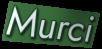
Murci